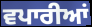
ਵਪਾਰੀਆਂ